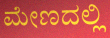
ಮೇಣದಲ್ಲಿ